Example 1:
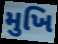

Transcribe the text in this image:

મુખિ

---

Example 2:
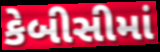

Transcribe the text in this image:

કેબીસીમાં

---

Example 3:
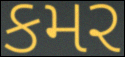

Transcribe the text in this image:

કમર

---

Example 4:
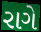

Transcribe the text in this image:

રાગે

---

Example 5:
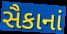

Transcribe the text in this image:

સૈકાનાં